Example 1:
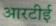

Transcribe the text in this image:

आरटीई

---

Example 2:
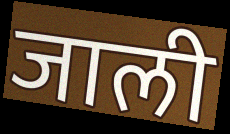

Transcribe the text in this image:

जाली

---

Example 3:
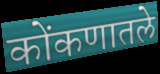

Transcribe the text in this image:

कोंकणातले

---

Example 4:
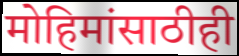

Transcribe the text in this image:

मोहिमांसाठीही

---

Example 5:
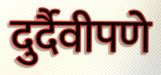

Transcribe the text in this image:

दुर्दैवीपणे